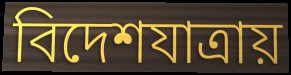
বিদেশযাত্রায়